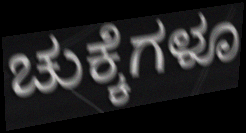
ಚುಕ್ಕೆಗಳೂ